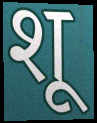
शू